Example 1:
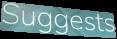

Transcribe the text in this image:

Suggests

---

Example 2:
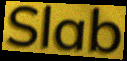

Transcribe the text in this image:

Slab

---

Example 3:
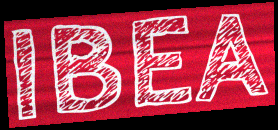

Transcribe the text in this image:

IBEA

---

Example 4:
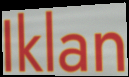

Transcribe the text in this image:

Iklan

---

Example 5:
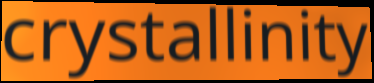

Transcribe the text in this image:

crystallinity